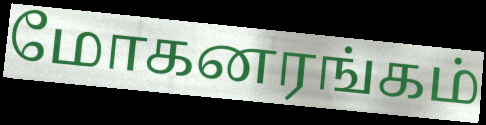
மோகனரங்கம்